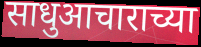
साधुआचाराच्या